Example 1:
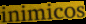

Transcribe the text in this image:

inimicos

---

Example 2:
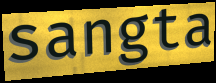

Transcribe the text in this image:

sangta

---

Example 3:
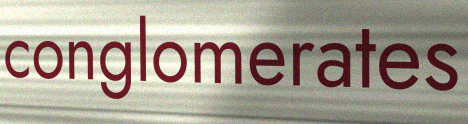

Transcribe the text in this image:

conglomerates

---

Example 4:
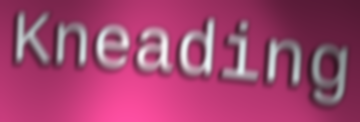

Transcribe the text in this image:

Kneading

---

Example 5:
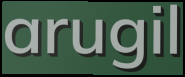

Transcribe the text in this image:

arugil